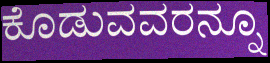
ಕೊಡುವವರನ್ನೂ